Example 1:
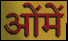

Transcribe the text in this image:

ओंमें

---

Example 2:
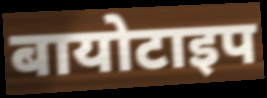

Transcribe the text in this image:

बायोटाइप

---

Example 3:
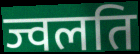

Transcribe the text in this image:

ज्वलति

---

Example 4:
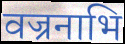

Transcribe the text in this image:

वज्रनाभि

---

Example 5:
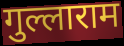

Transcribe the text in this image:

गुल्लाराम